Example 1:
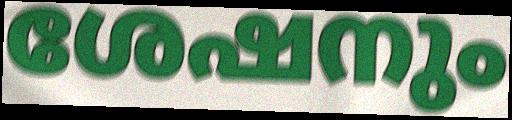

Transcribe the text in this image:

ശേഷനും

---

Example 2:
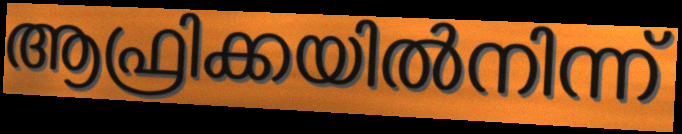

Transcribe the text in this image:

ആഫ്രിക്കയിൽനിന്ന്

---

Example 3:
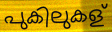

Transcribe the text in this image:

പുകിലുകള്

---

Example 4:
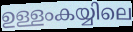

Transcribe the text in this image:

ഉള്ളംകയ്യിലെ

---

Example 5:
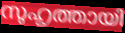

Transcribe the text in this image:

സുഹൃത്തായി